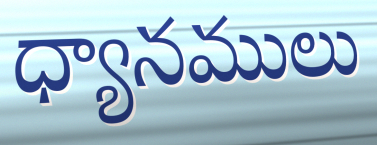
ధ్యానములు